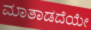
ಮಾತಾಡದೆಯೇ